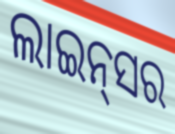
ଲାଇନ୍‌ସର